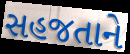
સહજતાને